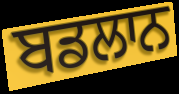
ਬਡਲਾਨ